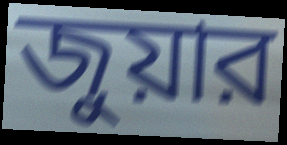
জুয়ার